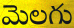
మెలగు